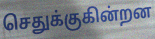
செதுக்குகின்றன